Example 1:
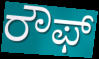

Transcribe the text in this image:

ರೌಫ್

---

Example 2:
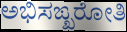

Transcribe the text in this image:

ಅಭಿಸಙ್ಖರೋತಿ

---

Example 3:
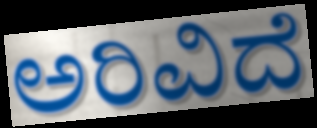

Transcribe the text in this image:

ಅರಿವಿದೆ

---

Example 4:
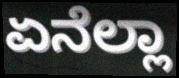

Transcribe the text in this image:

ಏನೆಲ್ಲಾ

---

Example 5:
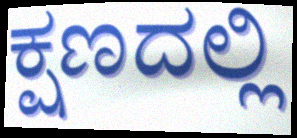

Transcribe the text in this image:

ಕ್ಷಣದಲ್ಲಿ